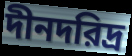
দীনদরিদ্র